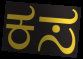
ಕಸ